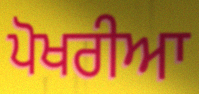
ਪੋਖਰੀਆ